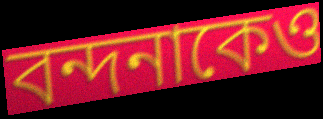
বন্দনাকেও